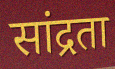
सांद्रता